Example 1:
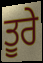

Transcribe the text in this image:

ਤੂਰੇ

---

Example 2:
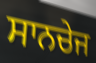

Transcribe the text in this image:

ਸਾਨਚੇਜ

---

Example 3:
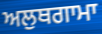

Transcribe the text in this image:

ਅਲੁਥਗਾਮਾ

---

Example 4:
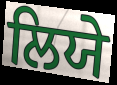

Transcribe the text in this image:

ਲਿਯੇ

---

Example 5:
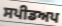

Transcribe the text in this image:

ਸਪੀਡਅਪ